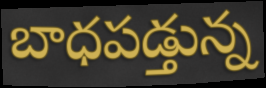
బాధపడ్తున్న